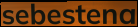
sebestena